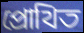
প্ৰোথিত